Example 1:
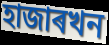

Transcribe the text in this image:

হাজাৰখন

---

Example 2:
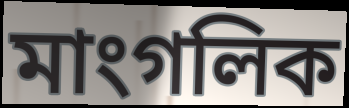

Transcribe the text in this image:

মাংগলিক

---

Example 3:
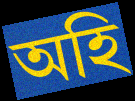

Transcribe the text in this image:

অহি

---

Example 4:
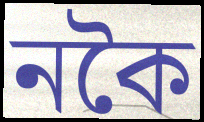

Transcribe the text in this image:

নকৈ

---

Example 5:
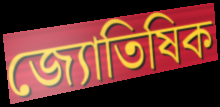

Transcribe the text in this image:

জ্যোতিষিক